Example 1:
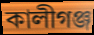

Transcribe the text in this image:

কালীগঞ্জ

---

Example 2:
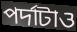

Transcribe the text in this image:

পর্দাটাও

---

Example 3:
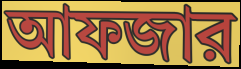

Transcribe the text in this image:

আফজার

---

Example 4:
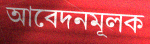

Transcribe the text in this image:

আবেদনমূলক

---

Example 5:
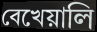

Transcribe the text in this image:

বেখেয়ালি